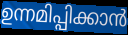
ഉന്നമിപ്പിക്കാൻ